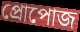
প্রোপোজ